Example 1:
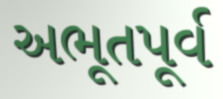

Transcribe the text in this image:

અભૂતપૂર્વ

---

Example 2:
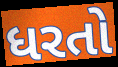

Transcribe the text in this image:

ધરતો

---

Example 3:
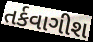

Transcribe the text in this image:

તર્કવાગીશ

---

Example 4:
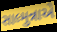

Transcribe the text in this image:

સાલ્મુન્નાએ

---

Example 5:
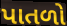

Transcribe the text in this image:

પાતળો